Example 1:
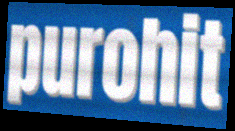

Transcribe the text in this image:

purohit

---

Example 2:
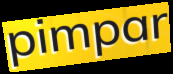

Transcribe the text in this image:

pimpar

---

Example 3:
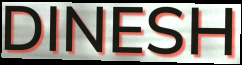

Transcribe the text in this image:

DINESH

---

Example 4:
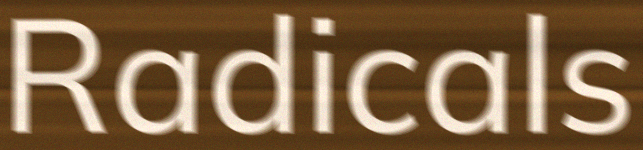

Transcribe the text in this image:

Radicals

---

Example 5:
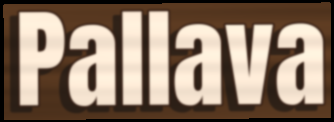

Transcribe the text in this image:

Pallava